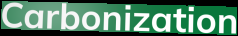
Carbonization